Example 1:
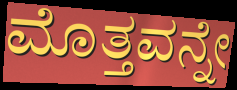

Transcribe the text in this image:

ಮೊತ್ತವನ್ನೇ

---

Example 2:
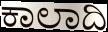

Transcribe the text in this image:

ಕಾಲಾದಿ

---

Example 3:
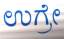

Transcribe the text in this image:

ಉಗ್ರೇ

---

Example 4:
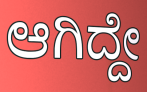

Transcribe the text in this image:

ಆಗಿದ್ದೇ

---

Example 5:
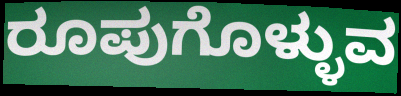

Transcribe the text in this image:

ರೂಪುಗೊಳ್ಳುವ